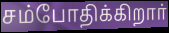
சம்போதிக்கிறார்